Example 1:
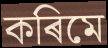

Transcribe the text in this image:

কৰিমে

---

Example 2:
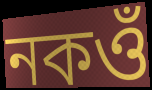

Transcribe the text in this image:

নকওঁ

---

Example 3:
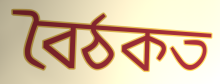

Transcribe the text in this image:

বৈঠকত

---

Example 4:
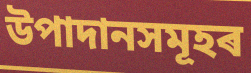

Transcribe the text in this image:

উপাদানসমূহৰ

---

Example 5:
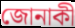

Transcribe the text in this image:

জোনাকী